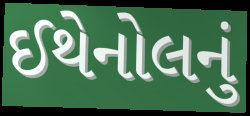
ઈથેનોલનું